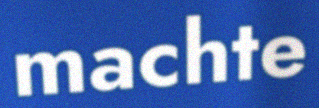
machte